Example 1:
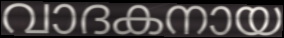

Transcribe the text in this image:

വാദകനായ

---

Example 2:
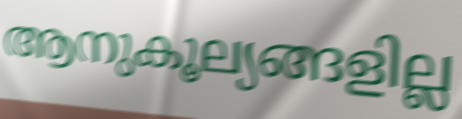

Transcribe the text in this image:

ആനുകൂല്യങ്ങളില്ല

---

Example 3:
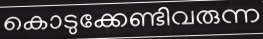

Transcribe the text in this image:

കൊടുക്കേണ്ടിവരുന്ന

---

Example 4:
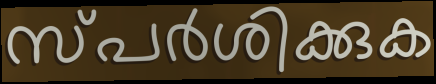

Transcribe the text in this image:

സ്പർശിക്കുക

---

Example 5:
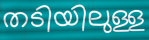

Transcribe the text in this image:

തടിയിലുള്ള